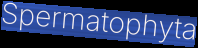
Spermatophyta